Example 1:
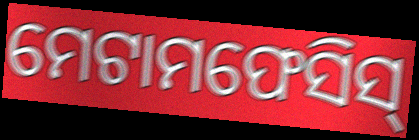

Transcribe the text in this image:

ମେଟାମଫେସିସ୍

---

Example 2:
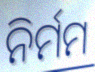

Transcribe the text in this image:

ନିର୍ମମ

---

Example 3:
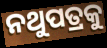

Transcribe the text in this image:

ନଥୁପତ୍ରକୁ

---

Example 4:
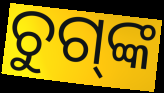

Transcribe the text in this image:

ଚୁଗ୍‌ଙ୍କ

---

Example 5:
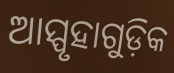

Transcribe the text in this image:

ଆସ୍ପୃହାଗୁଡ଼ିକ